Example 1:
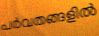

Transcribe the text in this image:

പർവതങ്ങളിൽ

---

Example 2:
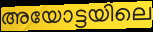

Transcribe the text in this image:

അയോട്ടയിലെ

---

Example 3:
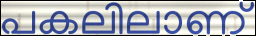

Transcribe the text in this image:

പകലിലാണ്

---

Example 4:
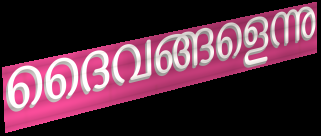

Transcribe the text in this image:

ദൈവങ്ങളെന്നു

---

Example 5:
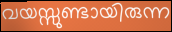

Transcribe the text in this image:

വയസ്സുണ്ടായിരുന്ന